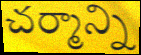
చర్మాన్ని